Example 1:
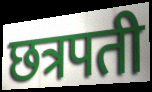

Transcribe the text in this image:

छत्रपती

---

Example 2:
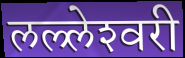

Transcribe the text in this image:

लल्लेश्वरी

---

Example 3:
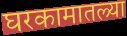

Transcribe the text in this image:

घरकामातल्या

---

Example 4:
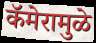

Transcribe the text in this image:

कॅमेरामुळे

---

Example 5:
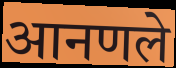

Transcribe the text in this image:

आनणले